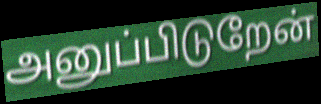
அனுப்பிடுறேன்